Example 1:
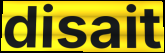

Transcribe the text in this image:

disait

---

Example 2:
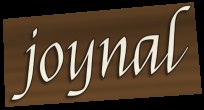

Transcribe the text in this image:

joynal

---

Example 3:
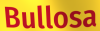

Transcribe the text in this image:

Bullosa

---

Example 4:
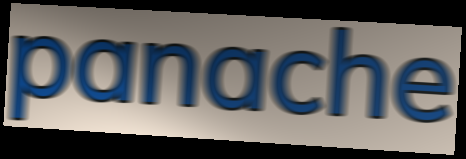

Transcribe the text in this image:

panache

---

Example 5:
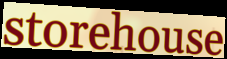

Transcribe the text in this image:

storehouse